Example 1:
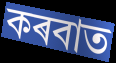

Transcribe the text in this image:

কৰবাত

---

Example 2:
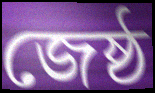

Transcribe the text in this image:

জেষ্ঠ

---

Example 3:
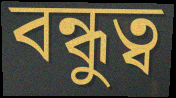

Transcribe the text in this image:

বন্ধুত্ব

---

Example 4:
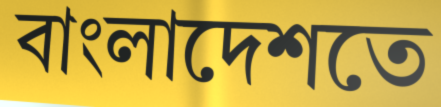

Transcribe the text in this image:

বাংলাদেশতে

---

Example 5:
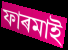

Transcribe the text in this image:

ফাৰমাই